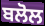
ਬਲੋਲ